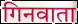
गिनवाता